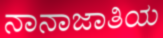
ನಾನಾಜಾತಿಯ